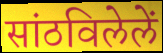
सांठविलेलें